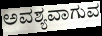
ಅವಶ್ಯವಾಗುವ